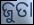
ଜୁତା